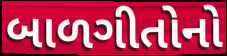
બાળગીતોનો